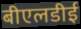
बीएलडीई